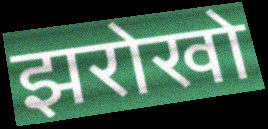
झरोखो